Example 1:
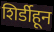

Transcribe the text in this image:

शिर्डीहून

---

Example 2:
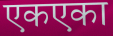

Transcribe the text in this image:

एकएका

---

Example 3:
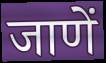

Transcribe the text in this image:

जाणें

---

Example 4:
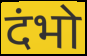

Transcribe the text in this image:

दंभो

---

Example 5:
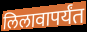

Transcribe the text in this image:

लिलावापर्यंत